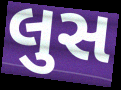
લુસ